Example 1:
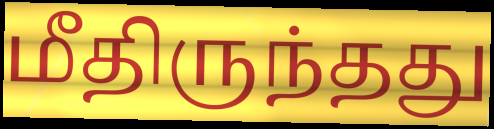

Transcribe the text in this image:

மீதிருந்தது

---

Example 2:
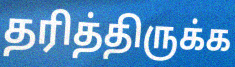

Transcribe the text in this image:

தரித்திருக்க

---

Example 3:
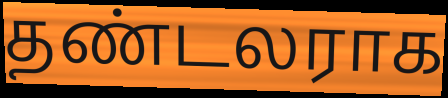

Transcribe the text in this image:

தண்டலராக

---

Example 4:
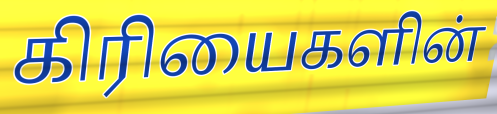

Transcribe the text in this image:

கிரியைகளின்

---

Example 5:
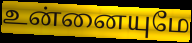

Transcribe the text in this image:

உன்னையுமே